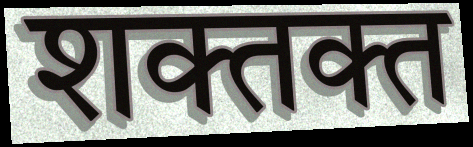
शक्तक्त